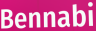
Bennabi